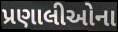
પ્રણાલીઓના